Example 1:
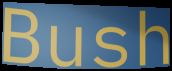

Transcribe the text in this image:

Bush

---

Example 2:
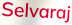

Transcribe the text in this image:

Selvaraj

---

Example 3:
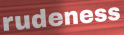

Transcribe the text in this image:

rudeness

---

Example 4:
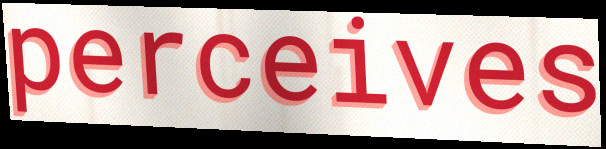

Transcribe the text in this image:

perceives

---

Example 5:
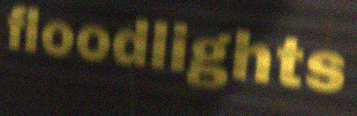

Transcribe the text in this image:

floodlights